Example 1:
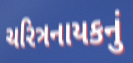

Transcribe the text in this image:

ચરિત્રનાયકનું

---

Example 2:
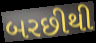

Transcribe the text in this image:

બરછીથી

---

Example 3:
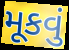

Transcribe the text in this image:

મૂકવું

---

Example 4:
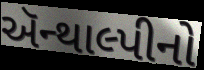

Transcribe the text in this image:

ઍન્થાલ્પીનો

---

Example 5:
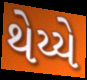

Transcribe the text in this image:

થેય્યે